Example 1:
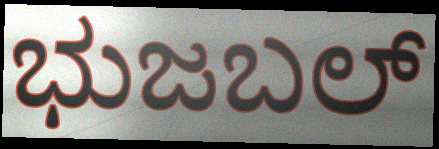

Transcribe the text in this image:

ಭುಜಬಲ್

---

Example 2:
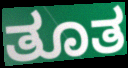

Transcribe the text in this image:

ತೂತ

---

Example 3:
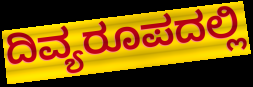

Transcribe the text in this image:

ದಿವ್ಯರೂಪದಲ್ಲಿ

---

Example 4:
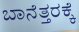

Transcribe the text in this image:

ಬಾನೆತ್ತರಕ್ಕೆ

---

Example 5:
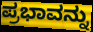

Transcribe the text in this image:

ಪ್ರಭಾವನ್ನು